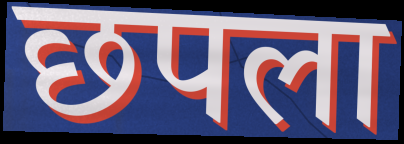
छपला